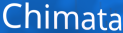
Chimata